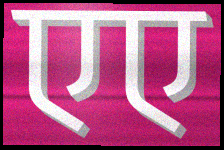
एए